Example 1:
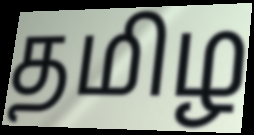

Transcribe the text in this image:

தமிழ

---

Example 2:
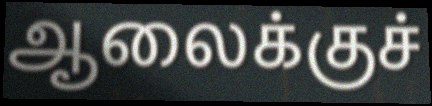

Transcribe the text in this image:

ஆலைக்குச்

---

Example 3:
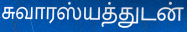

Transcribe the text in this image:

சுவாரஸ்யத்துடன்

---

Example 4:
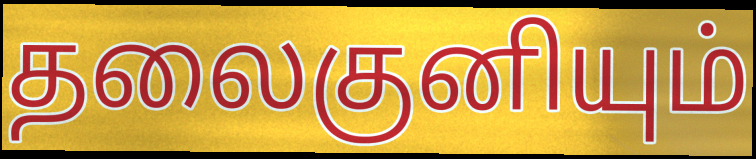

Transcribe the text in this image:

தலைகுனியும்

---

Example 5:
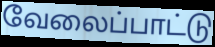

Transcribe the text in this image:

வேலைப்பாட்டு